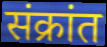
संक्रांत